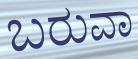
ಬರುವಾ